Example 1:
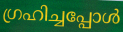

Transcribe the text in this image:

ഗ്രഹിച്ചപ്പോൾ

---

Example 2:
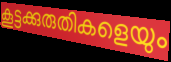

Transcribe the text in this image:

കൂട്ടക്കുരുതികളെയും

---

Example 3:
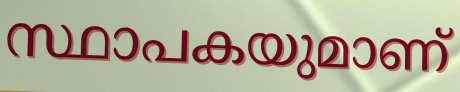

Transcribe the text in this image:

സ്ഥാപകയുമാണ്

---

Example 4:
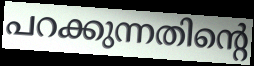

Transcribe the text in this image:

പറക്കുന്നതിന്റെ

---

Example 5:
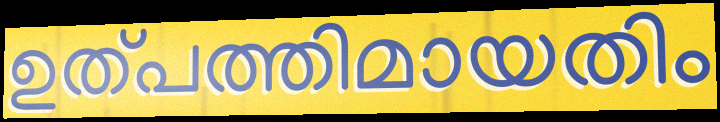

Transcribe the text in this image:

ഉത്പത്തിമായതിം